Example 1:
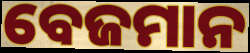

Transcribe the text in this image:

ବେଜମାନ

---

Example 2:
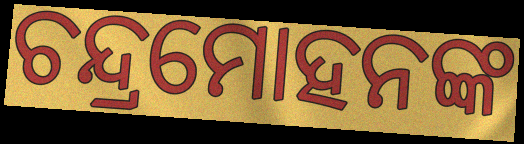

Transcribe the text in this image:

ଚନ୍ଦ୍ରମୋହନଙ୍କ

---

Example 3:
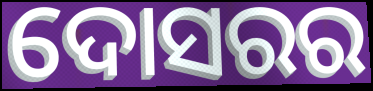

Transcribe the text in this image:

ଦୋସରର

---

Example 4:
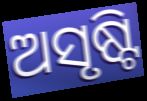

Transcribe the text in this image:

ଅସୃଷ୍ଟି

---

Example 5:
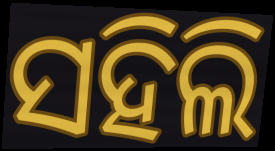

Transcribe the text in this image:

ସହିଲି